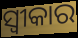
ସ୍ଵୀକାର